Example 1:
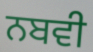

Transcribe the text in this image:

ਨਬਵੀ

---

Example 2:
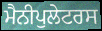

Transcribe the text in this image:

ਮੈਨੀਪੁਲੇਟਰਸ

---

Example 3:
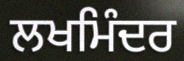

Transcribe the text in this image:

ਲਖਮਿੰਦਰ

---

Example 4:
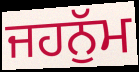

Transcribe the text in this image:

ਜਹਨੁੱਮ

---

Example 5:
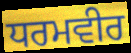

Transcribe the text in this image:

ਧਰਮਵੀਰ